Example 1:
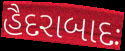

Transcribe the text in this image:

હૈદરાબાદઃ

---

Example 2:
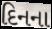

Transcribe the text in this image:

દિનના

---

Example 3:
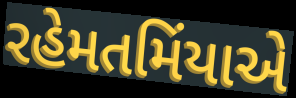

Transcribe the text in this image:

રહેમતમિંયાએ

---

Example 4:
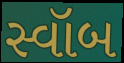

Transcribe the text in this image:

સ્વૉબ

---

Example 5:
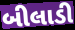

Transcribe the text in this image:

બીલાડી